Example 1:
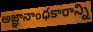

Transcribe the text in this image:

అజ్ఞానాంధకారాన్ని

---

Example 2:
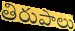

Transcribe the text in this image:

తిరుపాలు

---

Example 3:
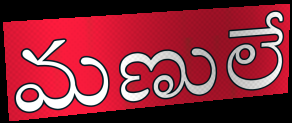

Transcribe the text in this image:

మణులే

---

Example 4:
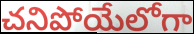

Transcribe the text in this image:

చనిపోయేలోగా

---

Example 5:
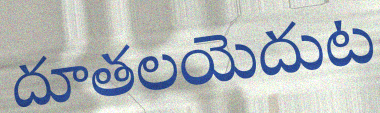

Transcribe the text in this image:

దూతలయెదుట